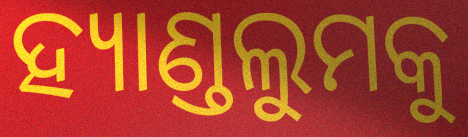
ହ୍ୟାଣ୍ଡଲୁମକୁ